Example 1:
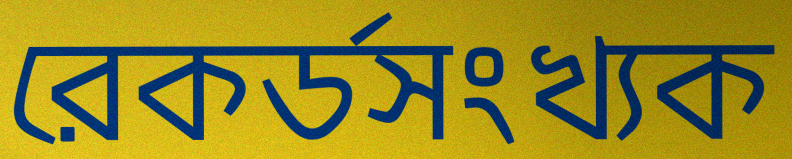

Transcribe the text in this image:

রেকর্ডসংখ্যক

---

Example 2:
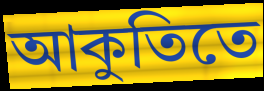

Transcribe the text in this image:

আকুতিতে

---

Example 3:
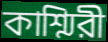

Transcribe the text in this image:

কাশ্মিরী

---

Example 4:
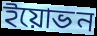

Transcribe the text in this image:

ইয়োভন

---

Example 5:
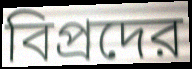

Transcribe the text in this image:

বিপ্রদের